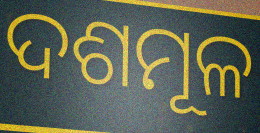
ଦଶମୂଳ